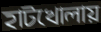
হাটখোলায়